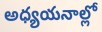
అధ్యయనాల్లో